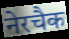
नेरचैक